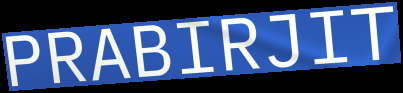
PRABIRJIT